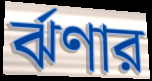
র্ঝণার